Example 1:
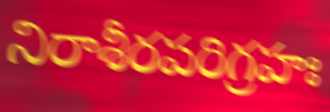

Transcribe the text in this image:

నిరాశీరపరిగ్రహః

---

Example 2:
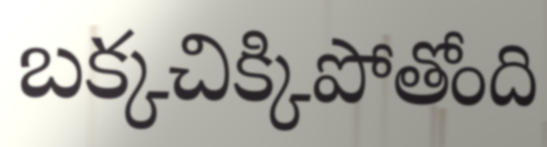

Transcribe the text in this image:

బక్కచిక్కిపోతోంది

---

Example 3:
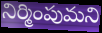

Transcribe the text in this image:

నిర్మింపుమని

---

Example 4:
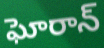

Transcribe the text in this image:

ఘోరాన్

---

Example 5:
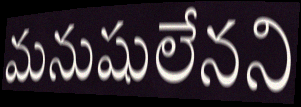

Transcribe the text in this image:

మనుషులేనని